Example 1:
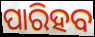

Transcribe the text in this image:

ପାରିହବ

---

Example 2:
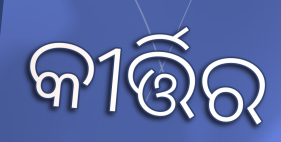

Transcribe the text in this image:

କୀର୍ତ୍ତିର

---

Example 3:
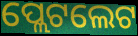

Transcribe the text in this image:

ପ୍ଲେଟଲେଟ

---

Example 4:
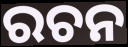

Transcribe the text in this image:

ରଚନ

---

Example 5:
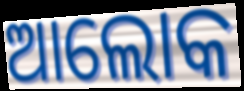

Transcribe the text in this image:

ଆଲୋକ